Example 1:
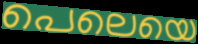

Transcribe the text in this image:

പെലെയെ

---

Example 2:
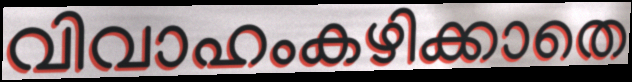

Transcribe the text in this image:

വിവാഹംകഴിക്കാതെ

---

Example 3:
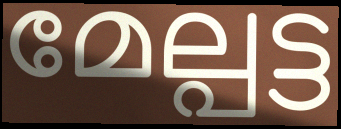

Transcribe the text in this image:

മേല്പട്ട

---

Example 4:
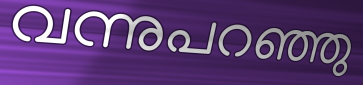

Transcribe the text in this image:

വന്നുപറഞ്ഞു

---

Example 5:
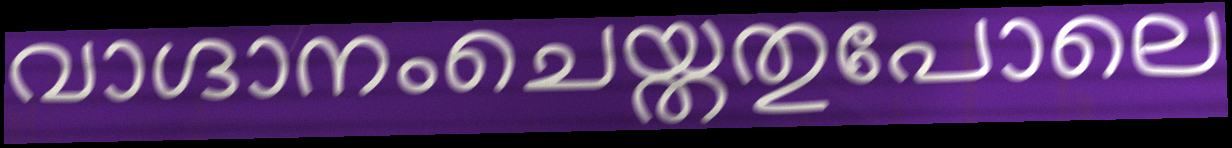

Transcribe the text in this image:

വാഗ്ദാനംചെയ്തതുപോലെ